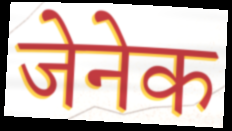
जेनेक